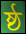
ষ্ঠ